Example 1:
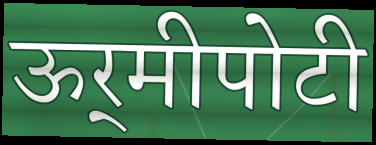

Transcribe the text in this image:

ऊर्मीपोटी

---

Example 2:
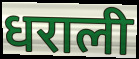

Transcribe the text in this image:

धराली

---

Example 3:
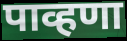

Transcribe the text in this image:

पाव्हणा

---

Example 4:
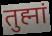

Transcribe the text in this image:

तुह्मां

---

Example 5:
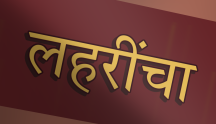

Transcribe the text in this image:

लहरींचा